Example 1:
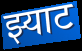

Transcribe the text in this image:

झ्याट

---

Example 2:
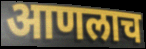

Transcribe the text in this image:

आणलाच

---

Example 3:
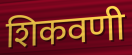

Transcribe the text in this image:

शिकवणी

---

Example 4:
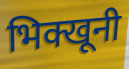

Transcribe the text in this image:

भिक्खूनी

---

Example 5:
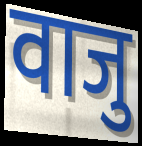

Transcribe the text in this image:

वाजु